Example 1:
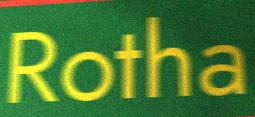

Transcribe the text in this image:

Rotha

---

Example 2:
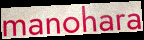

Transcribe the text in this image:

manohara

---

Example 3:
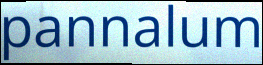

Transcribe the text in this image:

pannalum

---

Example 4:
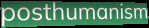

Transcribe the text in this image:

posthumanism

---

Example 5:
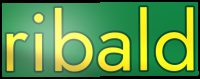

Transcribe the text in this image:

ribald